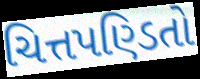
ચિત્તપણ્ડિતો